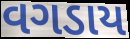
વગડાય